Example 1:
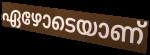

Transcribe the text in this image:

ഏഴോടെയാണ്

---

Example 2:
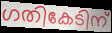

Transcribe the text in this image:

ഗതികേടിന്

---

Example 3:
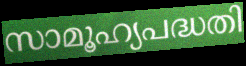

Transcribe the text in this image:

സാമൂഹ്യപദ്ധതി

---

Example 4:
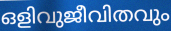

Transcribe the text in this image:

ഒളിവുജീവിതവും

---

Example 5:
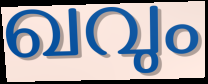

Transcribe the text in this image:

ഖവും